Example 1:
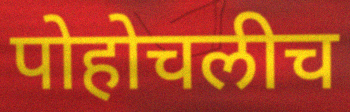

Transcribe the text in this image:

पोहोचलीच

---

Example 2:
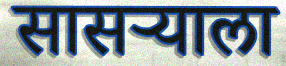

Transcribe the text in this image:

सासर्‍याला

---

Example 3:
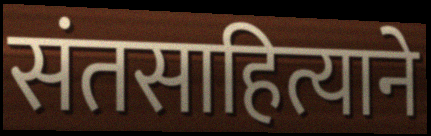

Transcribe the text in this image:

संतसाहित्याने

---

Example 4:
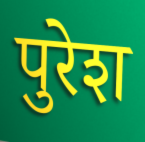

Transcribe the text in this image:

पुरेश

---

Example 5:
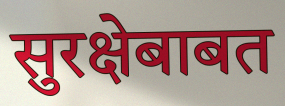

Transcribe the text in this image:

सुरक्षेबाबत